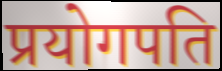
प्रयोगपति